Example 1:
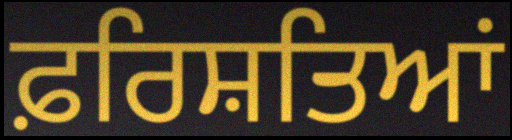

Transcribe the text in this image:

ਫ਼ਰਿਸ਼ਤਿਆਂ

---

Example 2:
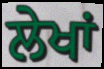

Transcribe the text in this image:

ਲੇਖਾਂ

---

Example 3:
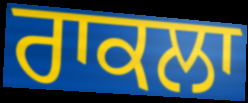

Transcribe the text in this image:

ਰਾਕਲਾ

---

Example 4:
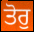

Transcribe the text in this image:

ਤੋਰੁ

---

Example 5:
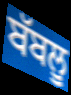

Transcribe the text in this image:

ਬੱਬਲੂ